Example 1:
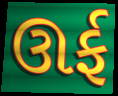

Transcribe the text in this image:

ઊર્ફ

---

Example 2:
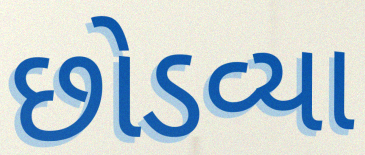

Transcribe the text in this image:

છોડવ્યા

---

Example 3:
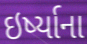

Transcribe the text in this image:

ઇર્ષ્યાના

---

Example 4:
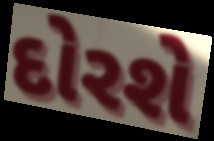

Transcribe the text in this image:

દોરશે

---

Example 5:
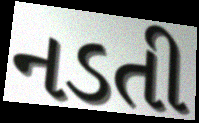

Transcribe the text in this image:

નડતી